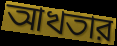
আখতার